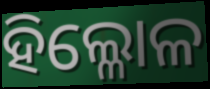
ହିଲ୍ଳୋଳ